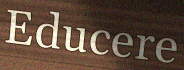
Educere